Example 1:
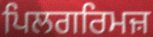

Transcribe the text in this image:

ਪਿਲਗਰਿਮਜ਼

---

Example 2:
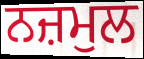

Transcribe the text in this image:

ਨਜ਼ਮੁਲ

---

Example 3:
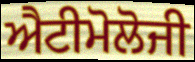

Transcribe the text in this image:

ਐਟੀਮੋਲੋਜੀ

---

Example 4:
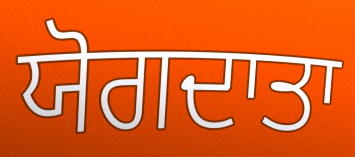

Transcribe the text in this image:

ਯੋਗਦਾਤਾ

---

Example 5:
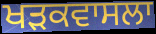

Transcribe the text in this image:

ਖੜਕਵਾਸਲਾ